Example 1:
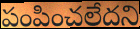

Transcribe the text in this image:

పంపించలేదని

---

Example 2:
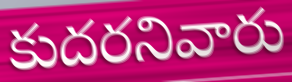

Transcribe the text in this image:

కుదరనివారు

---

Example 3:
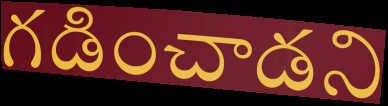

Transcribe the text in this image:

గడించాడని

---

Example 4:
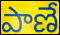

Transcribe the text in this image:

పాణే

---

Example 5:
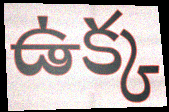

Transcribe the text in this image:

ఉక్క